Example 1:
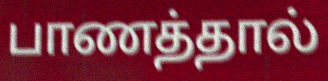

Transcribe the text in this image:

பாணத்தால்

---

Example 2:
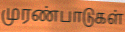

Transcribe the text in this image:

முரண்பாடுகள்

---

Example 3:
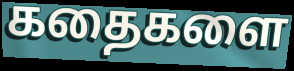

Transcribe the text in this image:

கதைகளை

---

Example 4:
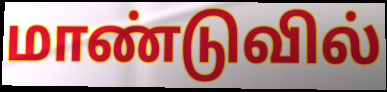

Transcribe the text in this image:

மாண்டுவில்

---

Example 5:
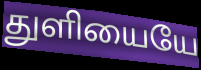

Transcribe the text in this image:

துளியையே